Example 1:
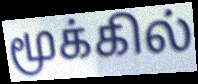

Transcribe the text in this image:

மூக்கில்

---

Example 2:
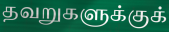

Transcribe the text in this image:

தவறுகளுக்குக்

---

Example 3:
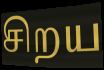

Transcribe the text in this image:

சிறய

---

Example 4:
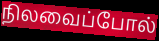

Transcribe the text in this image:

நிலவைப்போல்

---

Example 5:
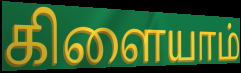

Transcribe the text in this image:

கிளையாம்